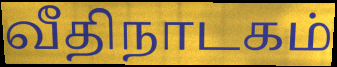
வீதிநாடகம்